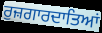
ਰੁਜ਼ਗਾਰਦਾਤਿਆਂ